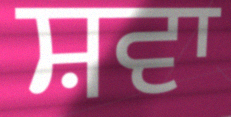
ਸ਼ਵਾ